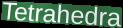
Tetrahedra